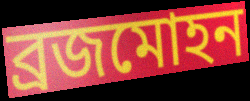
ব্রজমোহন